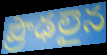
ప్రౌఢలైన